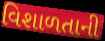
વિશાળતાની